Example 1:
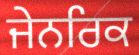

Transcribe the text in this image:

ਜੇਨਰਿਕ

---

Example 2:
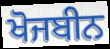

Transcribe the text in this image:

ਖੋਜਬੀਨ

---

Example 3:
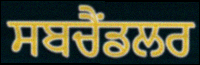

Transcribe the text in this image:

ਸਬਚੈਂਡਲਰ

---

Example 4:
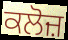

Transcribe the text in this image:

ਕਲੋਜ਼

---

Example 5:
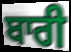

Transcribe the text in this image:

ਬਾਰੀ